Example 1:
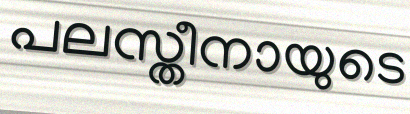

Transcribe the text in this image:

പലസ്തീനായുടെ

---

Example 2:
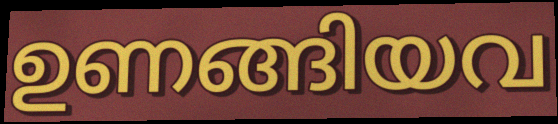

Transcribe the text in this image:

ഉണങ്ങിയവ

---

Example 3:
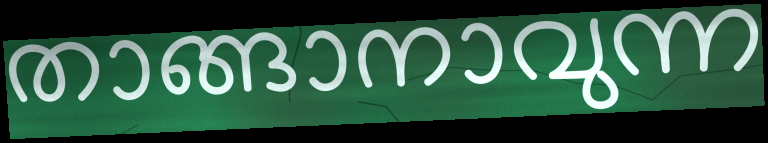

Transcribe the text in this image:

താങ്ങാനാവുന്ന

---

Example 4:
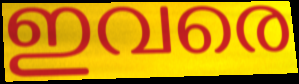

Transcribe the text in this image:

ഇവരെ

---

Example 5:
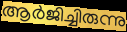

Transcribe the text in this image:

ആർജിച്ചിരുന്നു